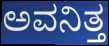
ಅವನಿತ್ತ